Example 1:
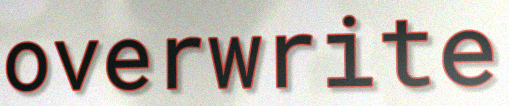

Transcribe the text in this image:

overwrite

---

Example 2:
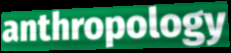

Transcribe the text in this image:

anthropology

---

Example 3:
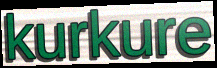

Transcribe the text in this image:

kurkure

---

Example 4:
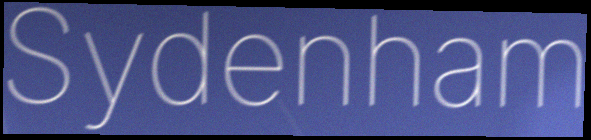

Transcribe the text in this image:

Sydenham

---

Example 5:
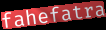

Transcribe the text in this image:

fahefatra